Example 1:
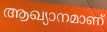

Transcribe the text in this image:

ആഖ്യാനമാണ്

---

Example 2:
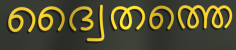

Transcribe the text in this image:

ദ്വൈതത്തെ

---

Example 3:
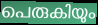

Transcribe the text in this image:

പെരുകിയും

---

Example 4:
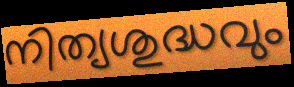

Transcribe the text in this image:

നിത്യശുദ്ധവും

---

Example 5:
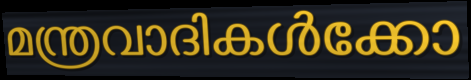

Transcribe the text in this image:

മന്ത്രവാദികൾക്കോ